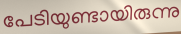
പേടിയുണ്ടായിരുന്നു